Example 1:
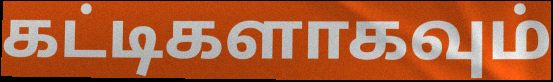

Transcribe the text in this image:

கட்டிகளாகவும்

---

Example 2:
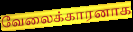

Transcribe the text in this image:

வேலைக்காரனாக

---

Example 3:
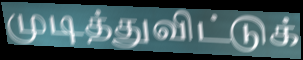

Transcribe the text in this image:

முடித்துவிட்டுக்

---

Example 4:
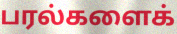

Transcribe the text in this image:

பரல்களைக்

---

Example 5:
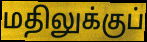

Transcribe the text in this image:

மதிலுக்குப்